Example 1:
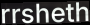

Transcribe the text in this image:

rrsheth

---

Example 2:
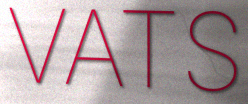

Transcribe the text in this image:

VATS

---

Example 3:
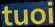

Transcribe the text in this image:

tuoi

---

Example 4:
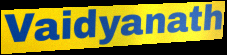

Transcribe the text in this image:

Vaidyanath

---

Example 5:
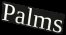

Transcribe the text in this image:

Palms